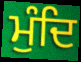
ਮੁੰਦਿ